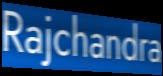
Rajchandra